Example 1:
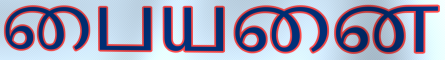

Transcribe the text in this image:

பையனை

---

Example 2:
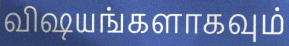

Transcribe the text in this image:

விஷயங்களாகவும்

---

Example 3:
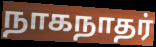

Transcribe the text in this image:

நாகநாதர்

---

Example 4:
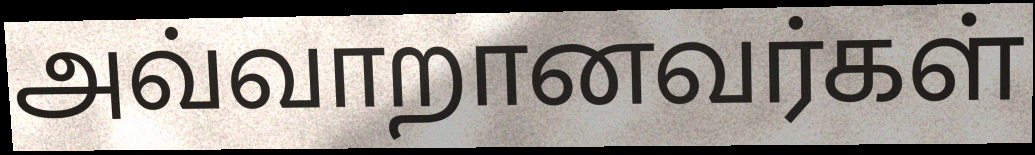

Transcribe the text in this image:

அவ்வாறானவர்கள்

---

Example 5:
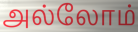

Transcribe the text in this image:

அல்லோம்